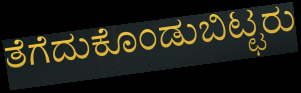
ತೆಗೆದುಕೊಂಡುಬಿಟ್ಟರು